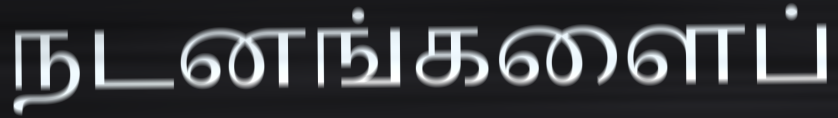
நடனங்களைப்